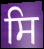
ਸਿ